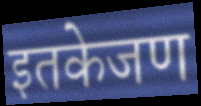
इतकेजण